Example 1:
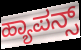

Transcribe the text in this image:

ಹ್ಯಾಪನ್ಸ್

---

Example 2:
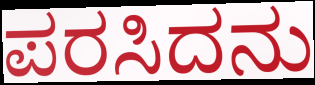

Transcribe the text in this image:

ಪರಸಿದನು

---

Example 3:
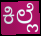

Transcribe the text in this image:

ಕಿಲ್ಲೆ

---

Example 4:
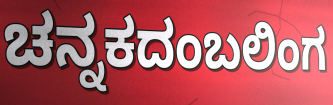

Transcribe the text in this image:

ಚನ್ನಕದಂಬಲಿಂಗ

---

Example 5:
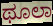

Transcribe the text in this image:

ಥೂಲಾ